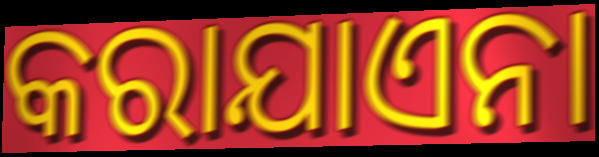
କରାଯାଏନା